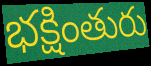
భక్షింతురు